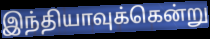
இந்தியாவுக்கென்று